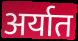
अर्यात